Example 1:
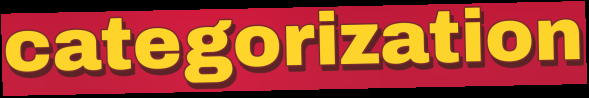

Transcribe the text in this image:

categorization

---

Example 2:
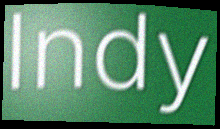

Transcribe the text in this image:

Indy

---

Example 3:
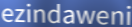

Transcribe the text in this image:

ezindaweni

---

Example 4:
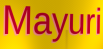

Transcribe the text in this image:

Mayuri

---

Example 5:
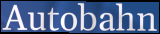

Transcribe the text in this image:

Autobahn